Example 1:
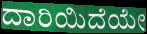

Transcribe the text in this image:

ದಾರಿಯಿದೆಯೇ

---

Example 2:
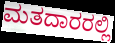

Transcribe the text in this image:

ಮತದಾರರಲ್ಲಿ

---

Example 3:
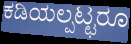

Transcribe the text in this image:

ಕಡಿಯಲ್ಪಟ್ಟರೂ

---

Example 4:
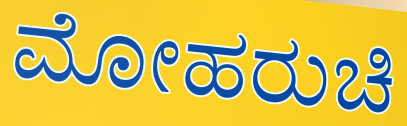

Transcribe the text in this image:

ಮೋಹರುಚಿ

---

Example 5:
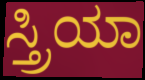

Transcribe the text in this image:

ಸ್ತ್ರಿಯಾ